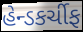
હેન્ડકર્ચીફ